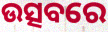
ଉତ୍ସବରେ